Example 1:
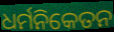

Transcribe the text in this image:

ଧର୍ମନିକେତନ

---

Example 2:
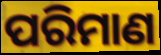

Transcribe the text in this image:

ପରିମାଣ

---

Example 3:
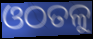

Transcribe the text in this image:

ଓଠତଳୁ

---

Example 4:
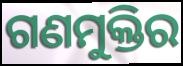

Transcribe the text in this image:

ଗଣମୁକ୍ତିର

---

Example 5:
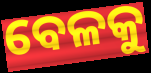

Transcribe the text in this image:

ବେଳକୁ